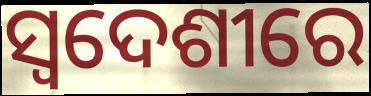
ସ୍ୱଦେଶୀରେ